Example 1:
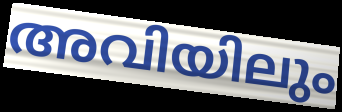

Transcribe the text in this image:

അവിയിലും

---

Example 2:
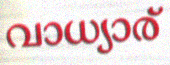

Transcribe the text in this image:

വാധ്യാര്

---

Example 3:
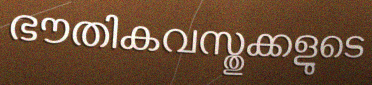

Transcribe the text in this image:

ഭൗതികവസ്തുക്കളുടെ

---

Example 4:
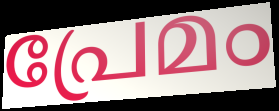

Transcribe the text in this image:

പ്രേമം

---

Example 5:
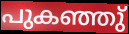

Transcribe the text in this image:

പുകഞ്ഞു്